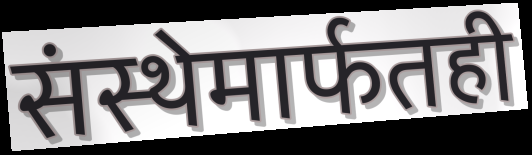
संस्थेमार्फतही